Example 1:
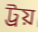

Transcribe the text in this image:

ট্ৰয়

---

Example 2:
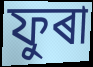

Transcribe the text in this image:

ফুৰা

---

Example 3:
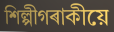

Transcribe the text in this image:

শিল্পীগৰাকীয়ে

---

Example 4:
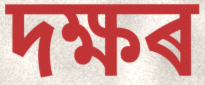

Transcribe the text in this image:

দক্ষৰ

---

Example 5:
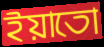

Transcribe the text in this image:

ইয়াতো